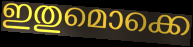
ഇതുമൊക്കെ